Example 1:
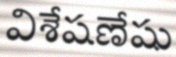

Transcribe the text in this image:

విశేషణేషు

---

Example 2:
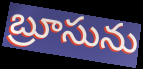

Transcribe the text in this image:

బ్రూసును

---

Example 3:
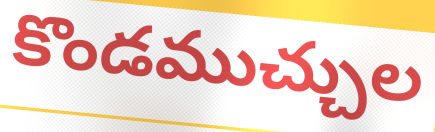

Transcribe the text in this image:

కొండముచ్చుల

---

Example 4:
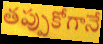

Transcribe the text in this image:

తప్పుకోగానే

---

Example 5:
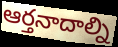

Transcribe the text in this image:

ఆర్తనాదాల్ని